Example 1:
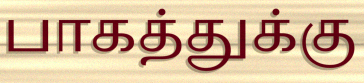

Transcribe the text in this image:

பாகத்துக்கு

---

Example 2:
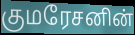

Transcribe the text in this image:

குமரேசனின்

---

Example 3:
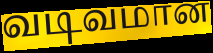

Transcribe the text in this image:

வடிவமான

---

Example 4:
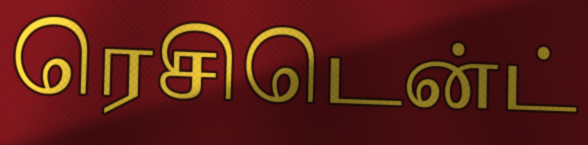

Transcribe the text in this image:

ரெசிடென்ட்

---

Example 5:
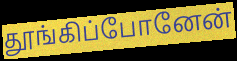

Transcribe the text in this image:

தூங்கிப்போனேன்